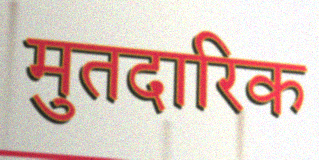
मुतदारिक